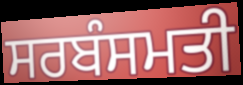
ਸਰਬੰਸਮਤੀ